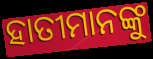
ହାତୀମାନଙ୍କୁ